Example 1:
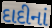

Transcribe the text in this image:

દાદીનાં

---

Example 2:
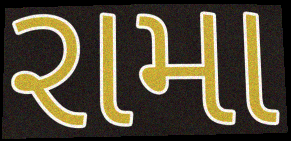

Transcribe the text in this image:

રામા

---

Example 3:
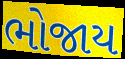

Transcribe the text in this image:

ભોજાય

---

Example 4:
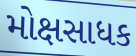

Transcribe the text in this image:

મોક્ષસાધક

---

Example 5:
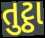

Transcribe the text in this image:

તુટ્ઠા